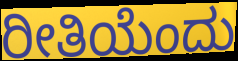
ರೀತಿಯೆಂದು